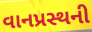
વાનપ્રસ્થની